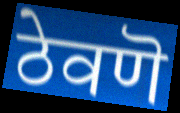
ठेवणॆ